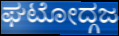
ಘಟೋದ್ಗಜ